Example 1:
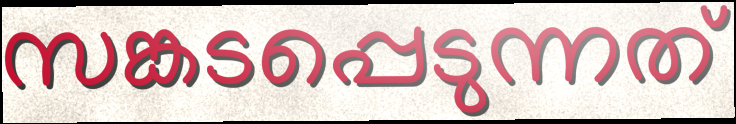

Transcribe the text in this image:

സങ്കടപ്പെടുന്നത്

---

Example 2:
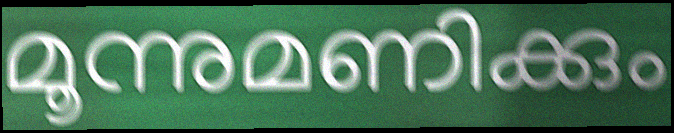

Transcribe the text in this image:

മൂന്നുമണിക്കും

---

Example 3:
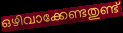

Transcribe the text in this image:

ഒഴിവാക്കേണ്ടതുണ്ട്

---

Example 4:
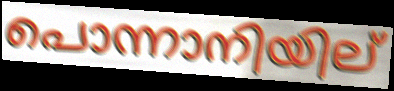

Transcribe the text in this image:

പൊന്നാനിയില്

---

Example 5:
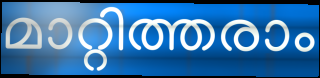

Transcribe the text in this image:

മാറ്റിത്തരാം